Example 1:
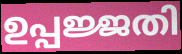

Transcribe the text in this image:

ഉപ്പജ്ജതി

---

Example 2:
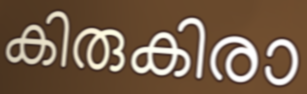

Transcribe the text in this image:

കിരുകിരാ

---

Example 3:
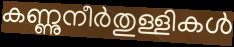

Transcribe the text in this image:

കണ്ണുനീർതുള്ളികൾ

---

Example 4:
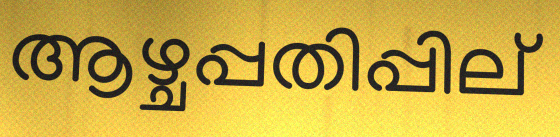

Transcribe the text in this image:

ആഴ്ചപ്പതിപ്പില്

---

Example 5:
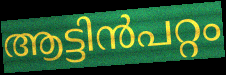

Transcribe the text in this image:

ആട്ടിൻപറ്റം